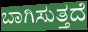
ಬಾಗಿಸುತ್ತದೆ